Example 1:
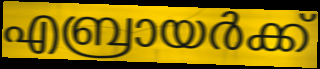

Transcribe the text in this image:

എബ്രായർക്ക്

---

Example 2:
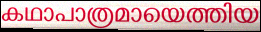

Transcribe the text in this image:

കഥാപാത്രമായെത്തിയ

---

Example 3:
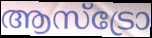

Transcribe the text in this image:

ആസ്ട്രോ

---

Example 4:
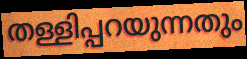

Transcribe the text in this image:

തള്ളിപ്പറയുന്നതും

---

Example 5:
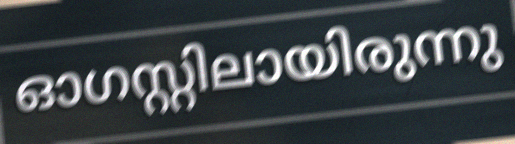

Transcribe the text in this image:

ഓഗസ്റ്റിലായിരുന്നു